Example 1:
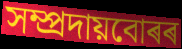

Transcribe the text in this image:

সম্প্ৰদায়বোৰৰ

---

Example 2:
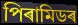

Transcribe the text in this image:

পিৰামিডৰ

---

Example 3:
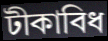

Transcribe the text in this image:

টীকাবিধ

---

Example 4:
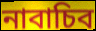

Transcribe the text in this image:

নাবাচিব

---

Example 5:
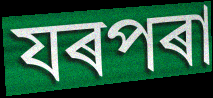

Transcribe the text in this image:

যৰপৰা